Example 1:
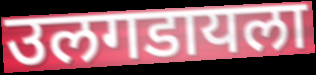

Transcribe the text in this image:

उलगडायला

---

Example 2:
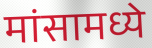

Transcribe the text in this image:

मांसामध्ये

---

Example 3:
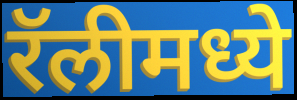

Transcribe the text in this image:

रॅलीमध्ये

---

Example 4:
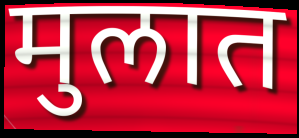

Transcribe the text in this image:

मुलात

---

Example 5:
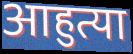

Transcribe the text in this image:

आहुत्या